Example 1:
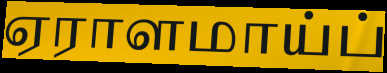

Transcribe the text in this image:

ஏராளமாய்ப்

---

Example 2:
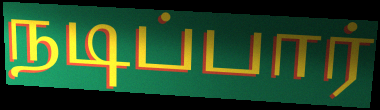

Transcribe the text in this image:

நடிப்பார்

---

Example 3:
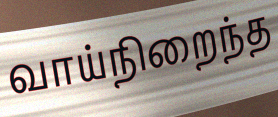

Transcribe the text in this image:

வாய்நிறைந்த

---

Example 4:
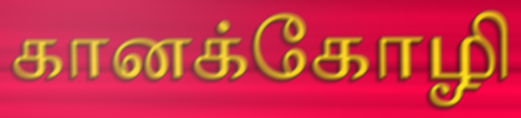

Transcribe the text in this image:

கானக்கோழி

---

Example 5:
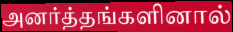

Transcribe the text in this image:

அனர்த்தங்களினால்